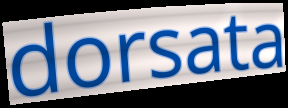
dorsata